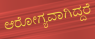
ಆರೋಗ್ಯವಾಗಿದ್ದರೆ